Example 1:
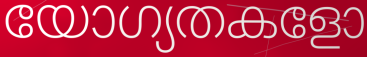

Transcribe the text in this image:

യോഗ്യതകളോ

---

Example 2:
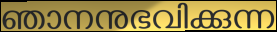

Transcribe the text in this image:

ഞാനനുഭവിക്കുന്ന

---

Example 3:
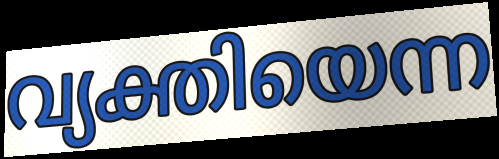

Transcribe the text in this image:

വ്യക്തിയെന്ന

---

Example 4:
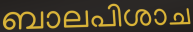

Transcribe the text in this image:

ബാലപിശാച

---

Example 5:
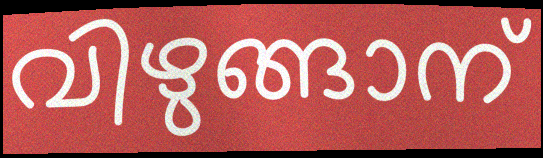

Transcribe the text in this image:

വിഴുങ്ങാന്